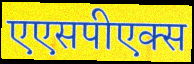
एएसपीएक्स